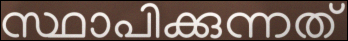
സ്ഥാപിക്കുന്നത്